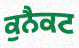
ਕੁਨੈਕਟ